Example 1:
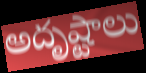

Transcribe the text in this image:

అదృష్టాలు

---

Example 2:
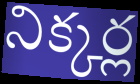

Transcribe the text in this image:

నిక్కర్ల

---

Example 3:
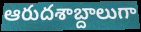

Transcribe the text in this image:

ఆరుదశాబ్దాలుగా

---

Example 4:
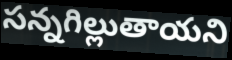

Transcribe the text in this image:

సన్నగిల్లుతాయని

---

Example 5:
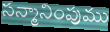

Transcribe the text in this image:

సన్మానింపుము